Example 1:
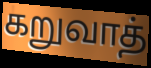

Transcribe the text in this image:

கறுவாத்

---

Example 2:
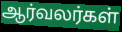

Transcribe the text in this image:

ஆர்வலர்கள்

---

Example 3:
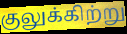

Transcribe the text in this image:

குலுக்கிற்று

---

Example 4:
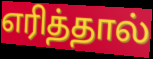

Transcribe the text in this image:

எரித்தால்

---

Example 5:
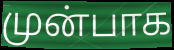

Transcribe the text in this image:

முன்பாக